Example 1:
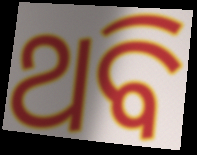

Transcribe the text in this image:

ଥବି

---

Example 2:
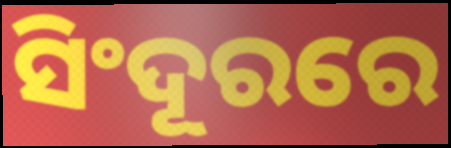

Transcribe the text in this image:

ସିଂଦୂରରେ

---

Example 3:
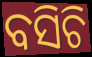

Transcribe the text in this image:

ବସିଚି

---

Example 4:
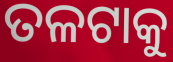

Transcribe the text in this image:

ତଳଟାକୁ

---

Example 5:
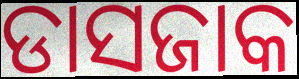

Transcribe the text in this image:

ଡାସଜାକ